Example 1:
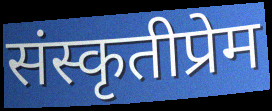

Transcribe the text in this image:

संस्कृतीप्रेम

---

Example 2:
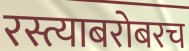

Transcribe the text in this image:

रस्त्याबरोबरच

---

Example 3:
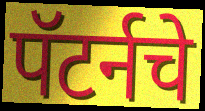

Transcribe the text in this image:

पॅटर्नचे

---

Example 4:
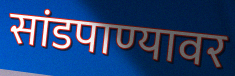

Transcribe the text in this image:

सांडपाण्यावर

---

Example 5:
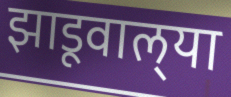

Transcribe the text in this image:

झाडूवाल्या